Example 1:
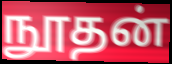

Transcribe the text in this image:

நூதன்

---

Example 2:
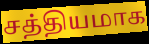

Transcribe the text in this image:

சத்தியமாக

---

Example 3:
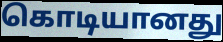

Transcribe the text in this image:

கொடியானது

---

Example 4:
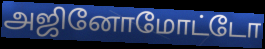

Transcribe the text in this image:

அஜினோமோட்டோ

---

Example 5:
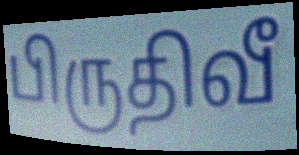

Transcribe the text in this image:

பிருதிவீ